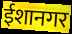
ईशानगर